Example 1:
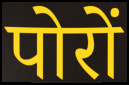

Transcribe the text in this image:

पोरों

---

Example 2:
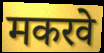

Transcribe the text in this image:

मकरवे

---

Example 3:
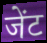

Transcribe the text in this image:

जेंट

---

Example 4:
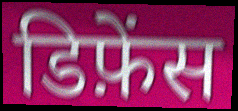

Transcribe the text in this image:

डिफ़ेंस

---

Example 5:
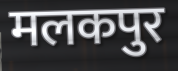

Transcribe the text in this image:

मलकपुर